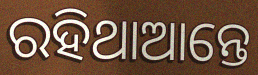
ରହିଥାଆନ୍ତେ